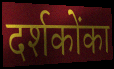
दर्शकोंका